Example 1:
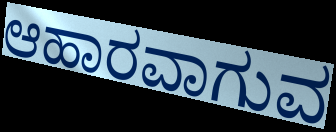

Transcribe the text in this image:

ಆಹಾರವಾಗುವ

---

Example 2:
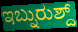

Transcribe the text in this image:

ಇಬ್ನುರುಶ್ದ್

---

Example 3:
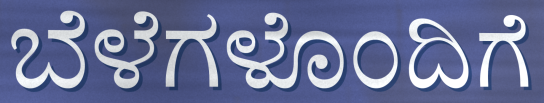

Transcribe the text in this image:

ಬೆಳೆಗಳೊಂದಿಗೆ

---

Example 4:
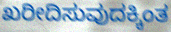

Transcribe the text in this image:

ಖರೀದಿಸುವುದಕ್ಕಿಂತ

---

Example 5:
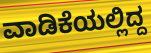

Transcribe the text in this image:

ವಾಡಿಕೆಯಲ್ಲಿದ್ದ